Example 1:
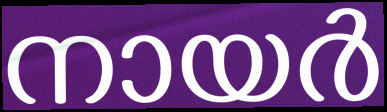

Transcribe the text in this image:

നായർ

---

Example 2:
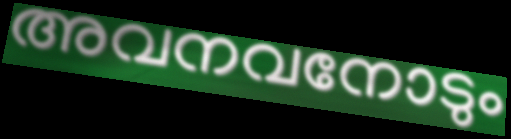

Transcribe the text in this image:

അവനവനോടും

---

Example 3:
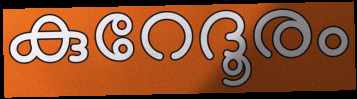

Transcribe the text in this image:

കുറേദൂരം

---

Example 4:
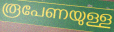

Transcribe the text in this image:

രൂപേണയുള്ള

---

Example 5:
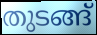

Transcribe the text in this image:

തുടങ്ങ്